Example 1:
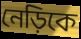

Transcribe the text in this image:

নেড়িকে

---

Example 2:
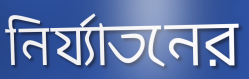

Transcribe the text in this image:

নির্য্যাতনের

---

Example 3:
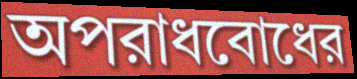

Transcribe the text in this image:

অপরাধবোধের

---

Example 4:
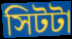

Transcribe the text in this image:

সিটটা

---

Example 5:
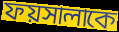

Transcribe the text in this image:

ফয়সালাকে